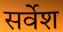
सर्वेश